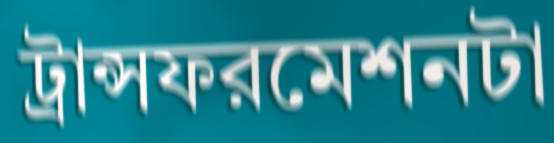
ট্রান্সফরমেশনটা